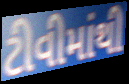
ટીવીમાંથી